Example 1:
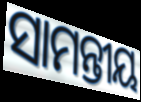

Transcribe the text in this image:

ସାମନ୍ତୀୟ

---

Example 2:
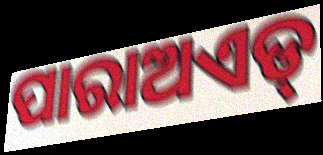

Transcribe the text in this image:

ପାରାଅଏଡ୍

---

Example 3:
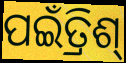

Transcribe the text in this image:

ପଇଁତ୍ରିଶ୍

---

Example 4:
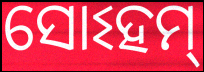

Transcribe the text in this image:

ସୋଽହମ୍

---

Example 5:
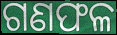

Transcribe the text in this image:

ଗଣଫଳ